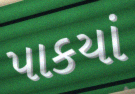
પાકયાં